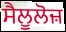
ਸੈਲੂਲੋਜ਼